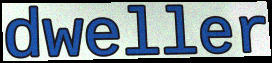
dweller